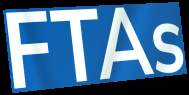
FTAs